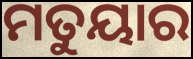
ମତୁୟାର